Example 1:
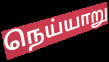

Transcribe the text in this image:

நெய்யாறு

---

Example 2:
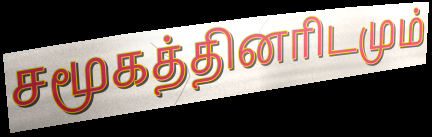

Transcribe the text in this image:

சமூகத்தினரிடமும்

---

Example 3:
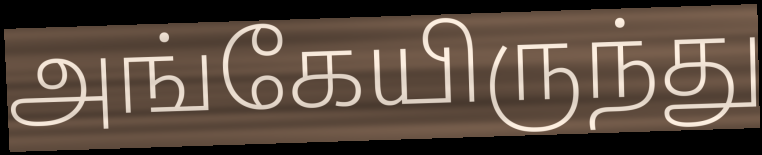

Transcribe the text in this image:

அங்கேயிருந்து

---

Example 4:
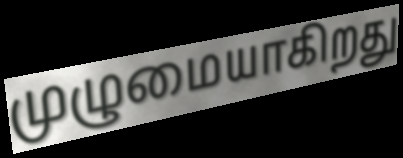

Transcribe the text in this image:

முழுமையாகிறது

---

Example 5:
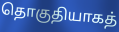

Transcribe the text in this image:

தொகுதியாகத்